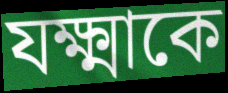
যক্ষ্মাকে